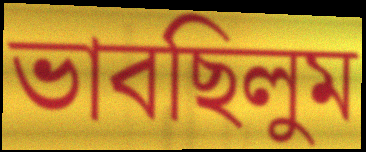
ভাবছিলুম